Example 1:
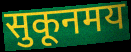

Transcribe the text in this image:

सुकूनमय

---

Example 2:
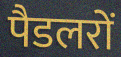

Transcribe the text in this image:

पैडलरों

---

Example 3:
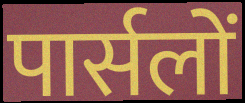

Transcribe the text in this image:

पार्सलों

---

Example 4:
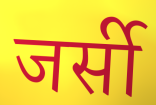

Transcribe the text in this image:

जर्सी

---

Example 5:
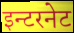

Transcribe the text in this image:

इन्टरनेट